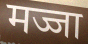
मज्जा